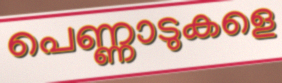
പെണ്ണാടുകളെ